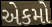
એકમો